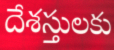
దేశస్తులకు